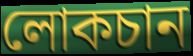
লোকচান